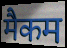
मैकम